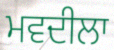
ਮਵਦੀਲਾ